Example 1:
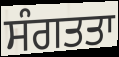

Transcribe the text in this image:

ਸੰਗਤਤਾ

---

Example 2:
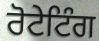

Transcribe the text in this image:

ਰੋਟੇਟਿੰਗ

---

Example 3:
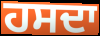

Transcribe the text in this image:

ਹਸਦਾ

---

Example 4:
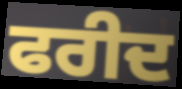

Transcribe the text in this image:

ਫਰੀਦ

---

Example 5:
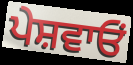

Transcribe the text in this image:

ਪੇਸ਼ਵਾਓਂ